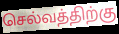
செல்வத்திற்கு